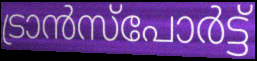
ട്രാൻസ്പോർട്ട്